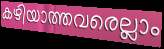
കഴിയാത്തവരെല്ലാം